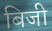
बिजी